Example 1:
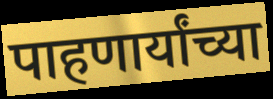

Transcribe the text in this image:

पाहणार्यांच्या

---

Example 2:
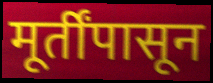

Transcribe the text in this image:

मूर्तींपासून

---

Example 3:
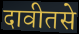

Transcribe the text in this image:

दावीतसे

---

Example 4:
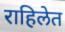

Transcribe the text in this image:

राहिलेत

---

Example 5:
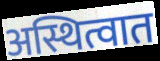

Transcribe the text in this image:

अस्थित्वात